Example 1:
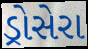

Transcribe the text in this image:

ડ્રોસેરા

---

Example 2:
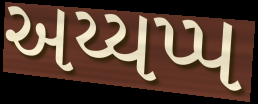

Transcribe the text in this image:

અય્યપ્પ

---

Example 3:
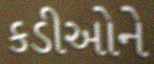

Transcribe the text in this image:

કડીઓને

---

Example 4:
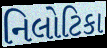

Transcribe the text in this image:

નિલોટિકા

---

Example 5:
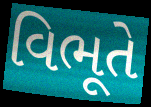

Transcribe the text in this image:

વિભૂતે